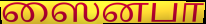
ஸைனபா